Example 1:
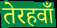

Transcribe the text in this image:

तेरहवाँ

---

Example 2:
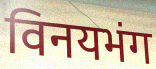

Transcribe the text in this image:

विनयभंग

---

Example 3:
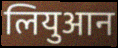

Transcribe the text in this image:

लियुआन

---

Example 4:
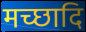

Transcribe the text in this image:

मच्छादि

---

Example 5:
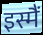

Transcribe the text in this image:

इस्मैं